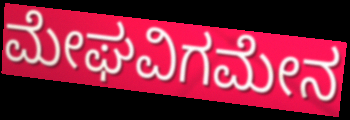
ಮೇಘವಿಗಮೇನ